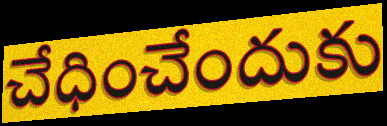
చేధించేందుకు